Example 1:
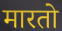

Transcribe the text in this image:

मारतो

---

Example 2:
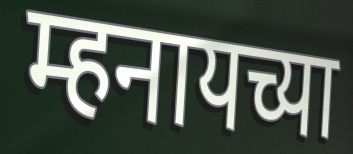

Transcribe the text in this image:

म्हनायच्या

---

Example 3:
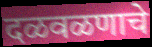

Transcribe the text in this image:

दळवळणाचे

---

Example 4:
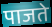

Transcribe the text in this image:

पाजते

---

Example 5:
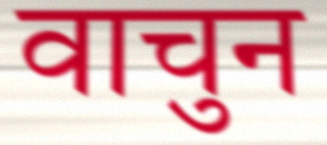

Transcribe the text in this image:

वाचुन